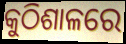
କୁଠିଶାଳରେ